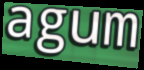
agum